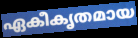
ഏകീകൃതമായ